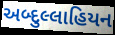
અબ્દુલ્લાહિયન